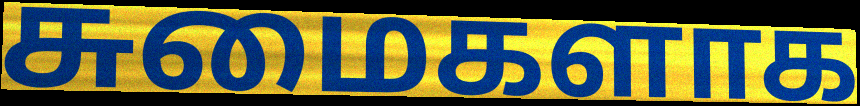
சுமைகளாக